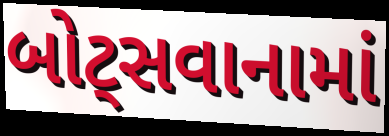
બોટ્સવાનામાં